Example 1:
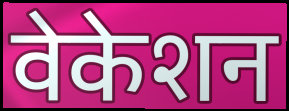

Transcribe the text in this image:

वेकेशन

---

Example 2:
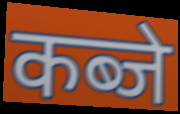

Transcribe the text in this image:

कब्जे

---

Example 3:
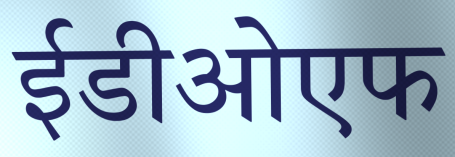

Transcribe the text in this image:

ईडीओएफ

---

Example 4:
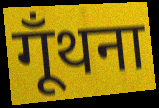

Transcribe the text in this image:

गूँथना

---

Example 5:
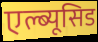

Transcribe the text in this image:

एल्ब्यूसिड